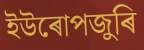
ইউৰোপজুৰি